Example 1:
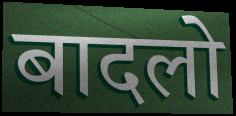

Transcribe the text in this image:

बादलो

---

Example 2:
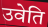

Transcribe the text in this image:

उवेति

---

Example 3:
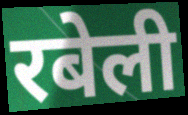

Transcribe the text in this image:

रबेली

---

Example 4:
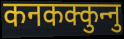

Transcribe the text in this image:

कनकक्कुन्नु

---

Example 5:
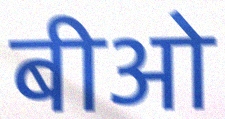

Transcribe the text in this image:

बीओ